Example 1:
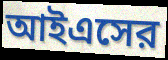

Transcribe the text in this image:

আইএসের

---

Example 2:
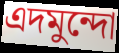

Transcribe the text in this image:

এদমুন্দো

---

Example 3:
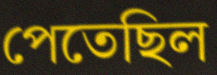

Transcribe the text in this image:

পেতেছিল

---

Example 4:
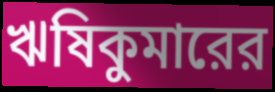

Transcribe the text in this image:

ঋষিকুমারের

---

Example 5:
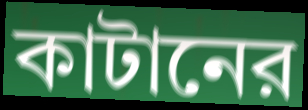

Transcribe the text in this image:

কাটানের